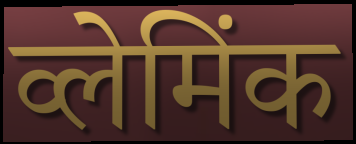
व्लेमिंक